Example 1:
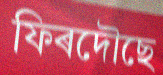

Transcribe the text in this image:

ফিৰদৌছে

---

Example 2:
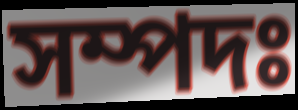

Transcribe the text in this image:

সম্পদঃ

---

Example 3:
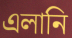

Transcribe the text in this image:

এলানি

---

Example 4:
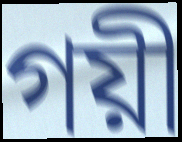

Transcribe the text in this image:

গয়ী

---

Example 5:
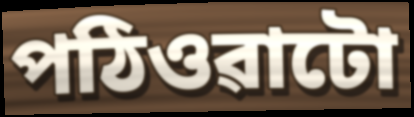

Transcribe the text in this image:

পঠিওৱাটো